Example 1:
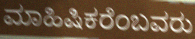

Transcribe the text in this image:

ಮಾಹಿಷಿಕರೆಂಬವರು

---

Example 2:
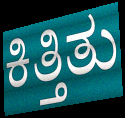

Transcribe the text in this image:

ಕಿತ್ತಿತು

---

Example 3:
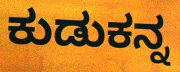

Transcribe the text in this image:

ಕುಡುಕನ್ನ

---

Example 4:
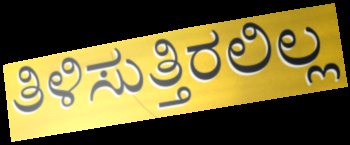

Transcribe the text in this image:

ತಿಳಿಸುತ್ತಿರಲಿಲ್ಲ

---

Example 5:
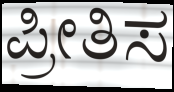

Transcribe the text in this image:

ಪ್ರೀತಿಸ